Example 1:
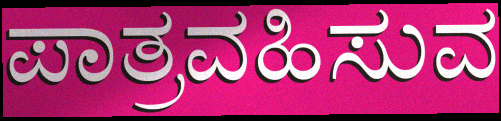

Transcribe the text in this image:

ಪಾತ್ರವಹಿಸುವ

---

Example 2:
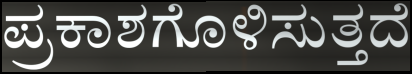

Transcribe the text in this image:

ಪ್ರಕಾಶಗೊಳಿಸುತ್ತದೆ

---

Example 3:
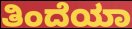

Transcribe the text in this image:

ತಿಂದೆಯಾ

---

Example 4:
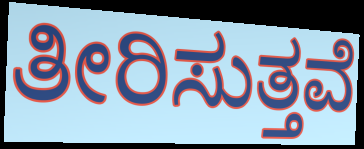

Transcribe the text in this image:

ತೀರಿಸುತ್ತವೆ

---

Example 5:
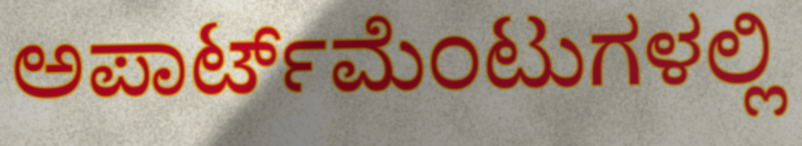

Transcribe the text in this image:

ಅಪಾರ್ಟ್‌ಮೆಂಟುಗಳಲ್ಲಿ